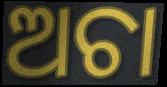
ଅଚା